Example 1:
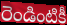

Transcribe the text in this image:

రెండింటికీ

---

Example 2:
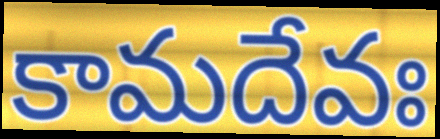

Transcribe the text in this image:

కామదేవః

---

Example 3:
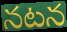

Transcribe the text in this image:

నటన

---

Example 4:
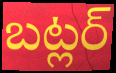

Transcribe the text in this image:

బట్లర్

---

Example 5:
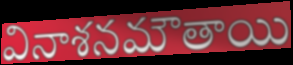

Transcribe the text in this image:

వినాశనమౌతాయి